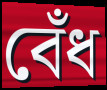
বেঁধ